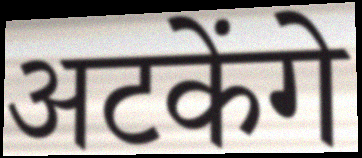
अटकेंगे